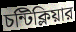
চন্টিক্লিয়ার